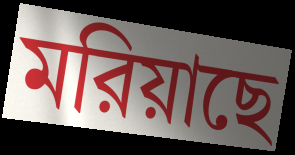
মরিয়াছে